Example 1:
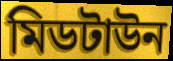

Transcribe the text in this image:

মিডটাউন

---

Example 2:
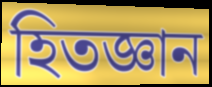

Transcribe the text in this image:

হিতজ্ঞান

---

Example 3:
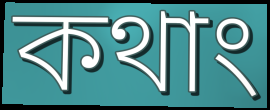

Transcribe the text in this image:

কথাং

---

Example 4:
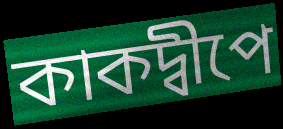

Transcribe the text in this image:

কাকদ্বীপে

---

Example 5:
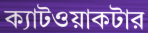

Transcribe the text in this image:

ক্যাটওয়াকটার